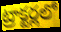
ట్రాక్టర్లలో